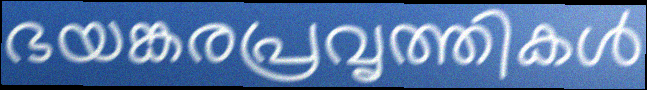
ഭയങ്കരപ്രവൃത്തികൾ